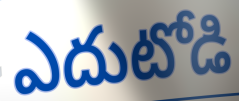
ఎదుటోడి